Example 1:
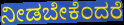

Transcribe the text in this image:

ನೀಡಬೇಕೆಂದರೆ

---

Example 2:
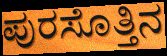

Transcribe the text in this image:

ಪುರಸೊತ್ತಿನ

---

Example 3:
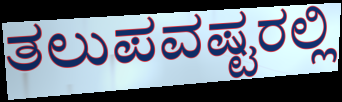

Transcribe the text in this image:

ತಲುಪವಷ್ಟರಲ್ಲಿ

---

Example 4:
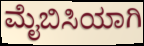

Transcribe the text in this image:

ಮೈಬಿಸಿಯಾಗಿ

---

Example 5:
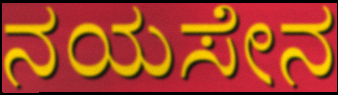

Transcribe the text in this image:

ನಯಸೇನ